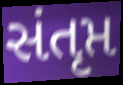
સંતૃપ્ત